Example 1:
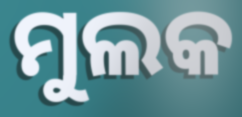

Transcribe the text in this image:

ମୁଲକ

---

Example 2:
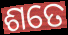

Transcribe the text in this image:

ଶତେ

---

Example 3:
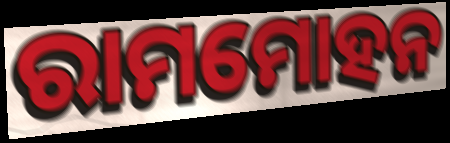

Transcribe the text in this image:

ରାମମୋହନ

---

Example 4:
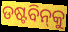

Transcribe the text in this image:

ଡଷ୍ଟବିନ୍‌କୁ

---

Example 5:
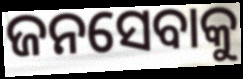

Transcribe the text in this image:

ଜନସେବାକୁ